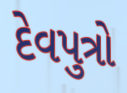
દેવપુત્રો